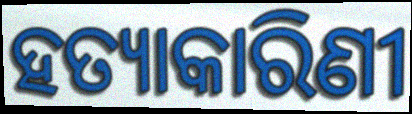
ହତ୍ୟାକାରିଣୀ